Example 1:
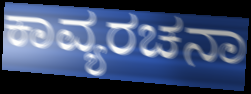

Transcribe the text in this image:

ಕಾವ್ಯರಚನಾ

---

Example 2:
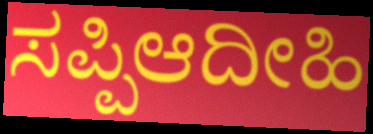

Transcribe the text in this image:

ಸಪ್ಪಿಆದೀಹಿ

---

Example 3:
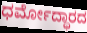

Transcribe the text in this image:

ಧರ್ಮೋದ್ಧಾರದ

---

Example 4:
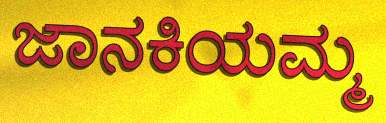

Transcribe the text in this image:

ಜಾನಕಿಯಮ್ಮ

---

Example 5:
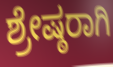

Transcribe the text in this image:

ಶ್ರೇಷ್ಠರಾಗಿ